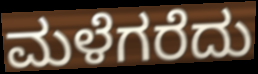
ಮಳೆಗರೆದು